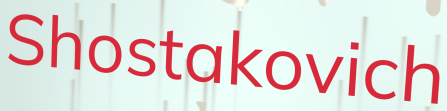
Shostakovich